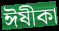
ঈষীকা